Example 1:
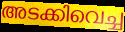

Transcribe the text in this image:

അടക്കിവെച്ച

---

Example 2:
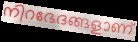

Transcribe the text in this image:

നിറഭേദങ്ങളാണ്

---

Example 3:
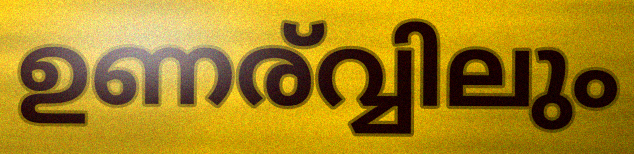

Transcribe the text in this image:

ഉണര്വ്വിലും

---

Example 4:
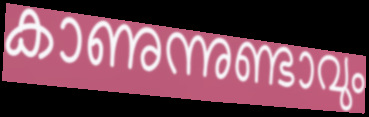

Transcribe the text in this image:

കാണുന്നുണ്ടാവും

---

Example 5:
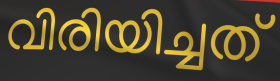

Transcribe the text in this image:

വിരിയിച്ചത്